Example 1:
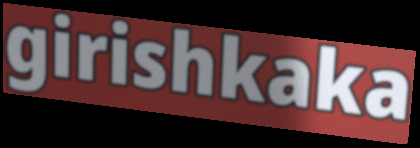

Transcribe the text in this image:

girishkaka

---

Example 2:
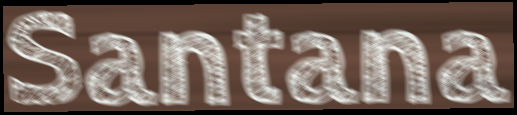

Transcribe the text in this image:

Santana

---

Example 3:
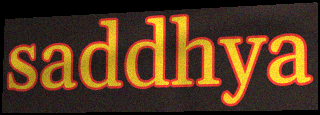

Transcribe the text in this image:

saddhya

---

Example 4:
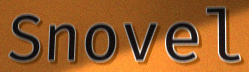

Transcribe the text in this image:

Snovel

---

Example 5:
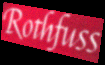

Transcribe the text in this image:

Rothfuss